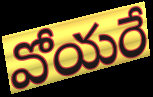
వోయరే